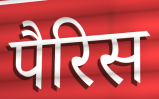
पैरिस